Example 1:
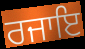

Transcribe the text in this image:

ਰਜਾਇ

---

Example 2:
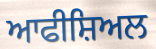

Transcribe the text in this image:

ਆਫੀਸ਼ਿਅਲ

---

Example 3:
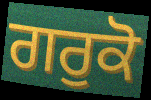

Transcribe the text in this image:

ਗਰੁਕੋ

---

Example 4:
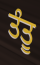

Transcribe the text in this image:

ਤੰਤੂ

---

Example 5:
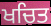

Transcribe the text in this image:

ਖਚਿਤ